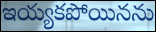
ఇయ్యకపోయినను